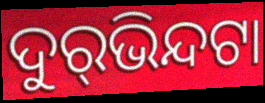
ଦୁର୍‌ଭିନ୍ଦଟା